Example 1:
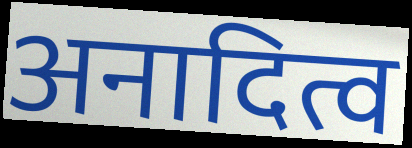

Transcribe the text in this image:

अनादित्व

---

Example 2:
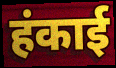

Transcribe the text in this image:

हंकाई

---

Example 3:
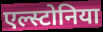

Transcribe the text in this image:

एल्स्टोनिया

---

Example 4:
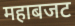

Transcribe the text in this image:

महाबजट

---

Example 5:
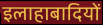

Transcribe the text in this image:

इलाहाबादियों